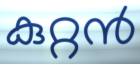
കുറ്റൻ